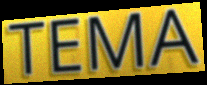
TEMA